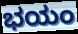
ಭಯಂ